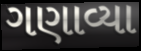
ગણાવ્યા